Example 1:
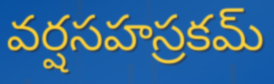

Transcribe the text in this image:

వర్షసహస్రకమ్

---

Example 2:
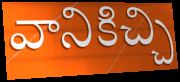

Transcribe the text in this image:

వానికిచ్చి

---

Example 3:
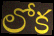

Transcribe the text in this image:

లోక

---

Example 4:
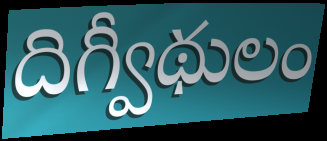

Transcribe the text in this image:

దిగ్వీథులం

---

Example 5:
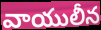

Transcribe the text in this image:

వాయులీన